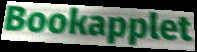
Bookapplet